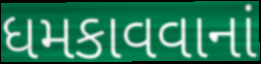
ધમકાવવાનાં